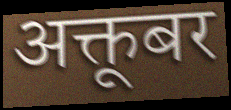
अक्तूबर